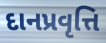
દાનપ્રવૃત્તિ